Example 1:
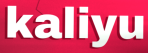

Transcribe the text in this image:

kaliyu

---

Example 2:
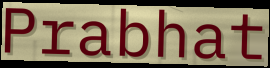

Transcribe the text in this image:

Prabhat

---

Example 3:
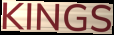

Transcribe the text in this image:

KINGS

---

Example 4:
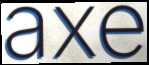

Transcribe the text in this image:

axe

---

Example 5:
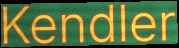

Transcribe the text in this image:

Kendler